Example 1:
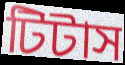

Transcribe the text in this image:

টিটাস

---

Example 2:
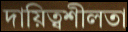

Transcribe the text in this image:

দায়িত্বশীলতা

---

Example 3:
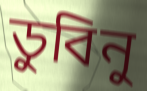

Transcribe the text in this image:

ডুবিনু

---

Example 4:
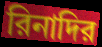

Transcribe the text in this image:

রিনাদির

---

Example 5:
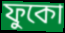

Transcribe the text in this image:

ফুকো